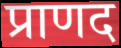
प्राणद